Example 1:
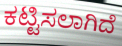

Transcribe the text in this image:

ಕಟ್ಟಿಸಲಾಗಿದೆ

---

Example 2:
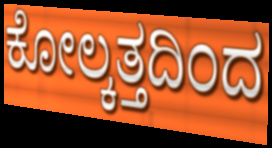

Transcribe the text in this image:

ಕೋಲ್ಕತ್ತದಿಂದ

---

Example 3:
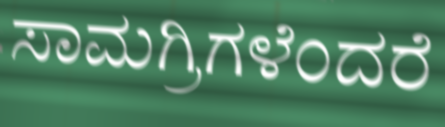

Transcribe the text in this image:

ಸಾಮಗ್ರಿಗಳೆಂದರೆ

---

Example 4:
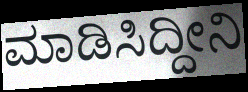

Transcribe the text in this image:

ಮಾಡಿಸಿದ್ದೀನಿ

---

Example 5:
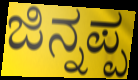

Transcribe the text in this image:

ಜಿನ್ನಪ್ಪ